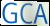
GCA